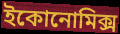
ইকোনোমিক্স